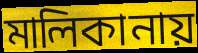
মালিকানায়